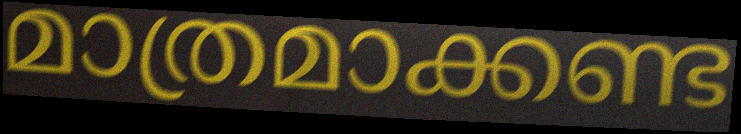
മാത്രമാക്കണ്ട